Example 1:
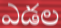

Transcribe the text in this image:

ఎడల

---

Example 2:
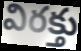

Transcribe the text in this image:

విరక్తు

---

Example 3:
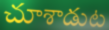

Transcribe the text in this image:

చూశాడుట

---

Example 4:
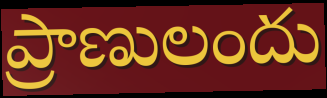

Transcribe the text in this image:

ప్రాణులందు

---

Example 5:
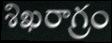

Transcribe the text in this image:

శిఖరాగ్రం